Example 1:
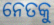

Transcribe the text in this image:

ନେତକୁ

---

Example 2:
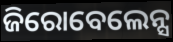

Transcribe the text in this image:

ଜିରୋବେଲେନ୍ସ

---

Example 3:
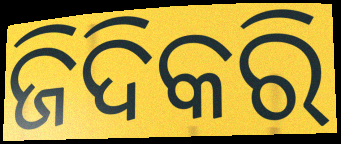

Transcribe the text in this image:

ଜିଦିକରି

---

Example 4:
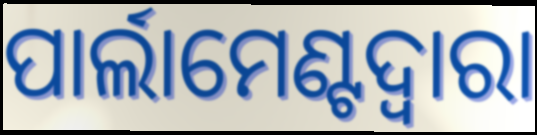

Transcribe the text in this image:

ପାର୍ଲାମେଣ୍ଟଦ୍ୱାରା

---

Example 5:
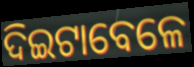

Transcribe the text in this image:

ଦିଇଟାବେଳେ